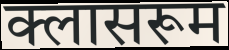
क्‍लासरूम